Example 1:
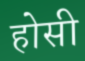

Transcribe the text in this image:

होसी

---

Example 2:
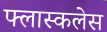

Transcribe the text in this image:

फ्लास्कलेस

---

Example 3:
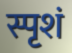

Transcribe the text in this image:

स्पृशं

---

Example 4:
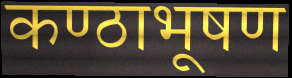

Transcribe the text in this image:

कण्ठाभूषण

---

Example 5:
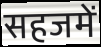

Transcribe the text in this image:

सहजमें